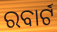
ରବାର୍ଟ